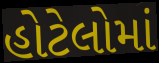
હોટેલોમાં